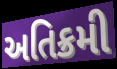
અતિક્રમી